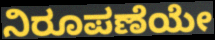
ನಿರೂಪಣೆಯೇ